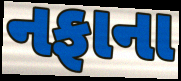
નફાના